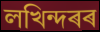
লখিন্দৰৰ